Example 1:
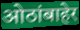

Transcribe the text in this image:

ओठांबाहेर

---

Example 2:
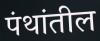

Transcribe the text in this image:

पंथांतील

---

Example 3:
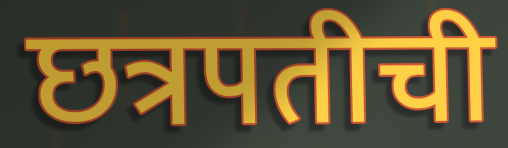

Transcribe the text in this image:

छत्रपतीची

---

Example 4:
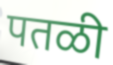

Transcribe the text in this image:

पतळी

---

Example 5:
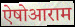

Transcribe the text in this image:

ऐषोआराम